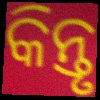
କିନ୍ତୃ